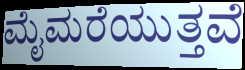
ಮೈಮರೆಯುತ್ತವೆ